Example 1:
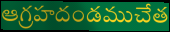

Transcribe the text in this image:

ఆగ్రహదండముచేత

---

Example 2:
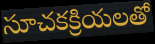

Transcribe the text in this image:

సూచకక్రియలతో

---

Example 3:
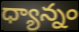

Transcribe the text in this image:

ధ్యాన్నం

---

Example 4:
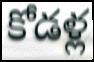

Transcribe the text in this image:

కోడళ్ల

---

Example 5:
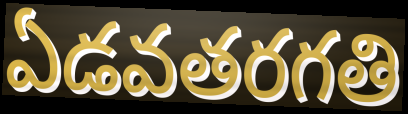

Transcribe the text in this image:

ఏడవతరగతి